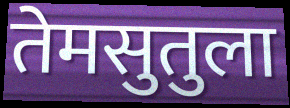
तेमसुतुला